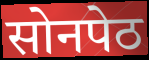
सोनपेठ